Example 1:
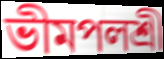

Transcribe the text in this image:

ভীমপলশ্রী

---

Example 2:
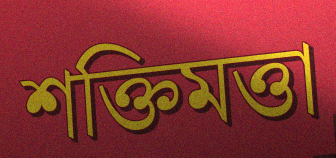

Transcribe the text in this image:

শক্তিমত্তা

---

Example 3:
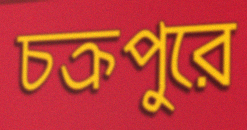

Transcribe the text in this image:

চক্রপুরে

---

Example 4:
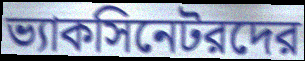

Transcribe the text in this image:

ভ্যাকসিনেটরদের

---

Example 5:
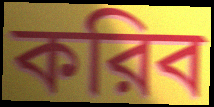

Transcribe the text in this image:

করিব